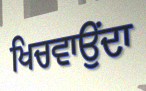
ਖਿਚਵਾਉਂਦਾ